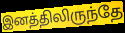
இனத்திலிருந்தே